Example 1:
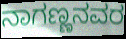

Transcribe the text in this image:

ನಾಗಣ್ಣನವರ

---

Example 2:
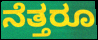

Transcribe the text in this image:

ನೆತ್ತರೂ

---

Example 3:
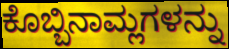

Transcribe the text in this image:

ಕೊಬ್ಬಿನಾಮ್ಲಗಳನ್ನು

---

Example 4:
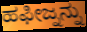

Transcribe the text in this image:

ಹಫೀಜ್ನನ್ನು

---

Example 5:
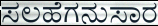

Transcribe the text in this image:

ಸಲಹೆಗನುಸಾರ